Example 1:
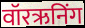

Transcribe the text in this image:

वॉरऋनिंग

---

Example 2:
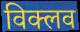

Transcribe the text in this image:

विक्लव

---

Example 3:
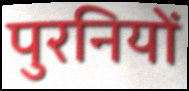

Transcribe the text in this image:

पुरनियों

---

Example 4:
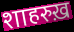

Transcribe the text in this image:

शाहरुख़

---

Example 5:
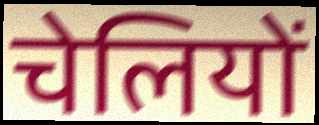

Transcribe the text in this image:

चेलियों